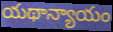
యథాన్యాయం